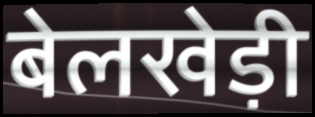
बेलखेड़ी